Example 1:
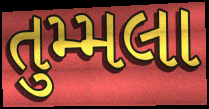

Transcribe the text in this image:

તુમ્મલા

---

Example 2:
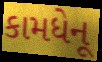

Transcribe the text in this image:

કામધેનૂ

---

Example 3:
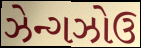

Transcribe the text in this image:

ઝેન્ગઝોઉ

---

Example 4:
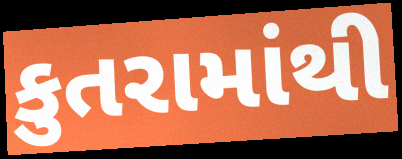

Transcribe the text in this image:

કુતરામાંથી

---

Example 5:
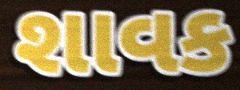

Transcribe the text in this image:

શાવક